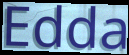
Edda